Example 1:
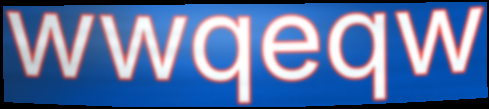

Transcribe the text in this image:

wwqeqw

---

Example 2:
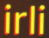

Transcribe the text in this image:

irli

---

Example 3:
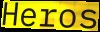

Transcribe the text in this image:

Heros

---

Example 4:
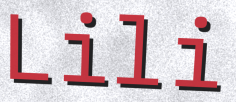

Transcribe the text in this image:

Lili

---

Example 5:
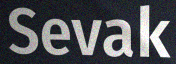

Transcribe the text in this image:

Sevak